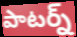
పాటర్న్